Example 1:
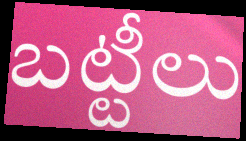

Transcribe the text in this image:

బట్టీలు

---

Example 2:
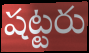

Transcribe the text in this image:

షట్టరు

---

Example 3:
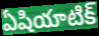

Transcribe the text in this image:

ఏషియాటిక్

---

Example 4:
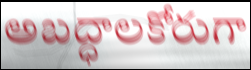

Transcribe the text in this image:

అబద్ధాలకోరుగా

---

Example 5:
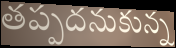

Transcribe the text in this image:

తప్పదనుకున్న